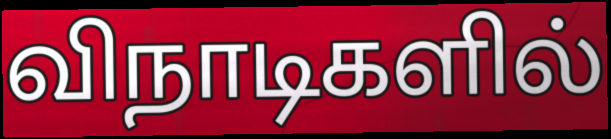
விநாடிகளில்